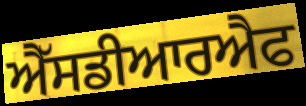
ਐੱਸਡੀਆਰਐਫ